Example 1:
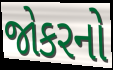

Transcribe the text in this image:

જોકરનો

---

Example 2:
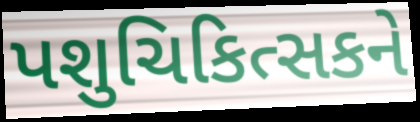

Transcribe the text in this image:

પશુચિકિત્સકને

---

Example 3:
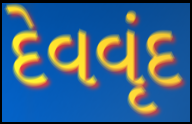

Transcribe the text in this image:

દેવવૃંદ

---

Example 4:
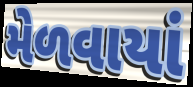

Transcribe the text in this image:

મેળવાયાં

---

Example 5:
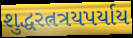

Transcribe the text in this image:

શુદ્ધરત્નત્રયપર્યાય